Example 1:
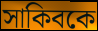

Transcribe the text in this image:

সাকিবকে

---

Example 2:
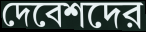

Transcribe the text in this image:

দেবেশদের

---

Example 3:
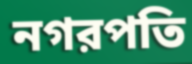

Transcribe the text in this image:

নগরপতি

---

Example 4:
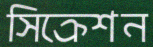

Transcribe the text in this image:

সিক্রেশন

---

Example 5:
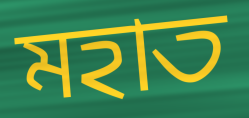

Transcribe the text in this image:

মহাত